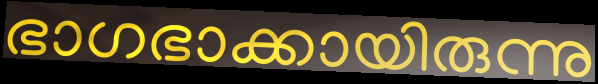
ഭാഗഭാക്കായിരുന്നു